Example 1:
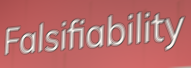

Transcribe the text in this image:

Falsifiability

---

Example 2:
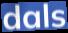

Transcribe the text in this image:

dals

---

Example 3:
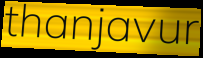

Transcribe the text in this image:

thanjavur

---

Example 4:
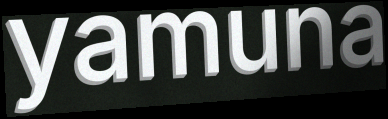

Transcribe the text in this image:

yamuna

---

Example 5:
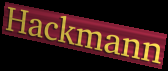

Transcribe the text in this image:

Hackmann